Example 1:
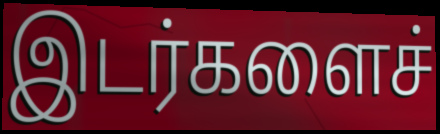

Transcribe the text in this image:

இடர்களைச்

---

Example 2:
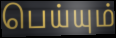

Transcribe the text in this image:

பெய்யும்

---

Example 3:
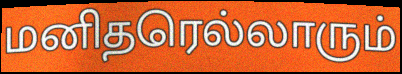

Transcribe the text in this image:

மனிதரெல்லாரும்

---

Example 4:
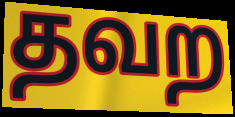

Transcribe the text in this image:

தவற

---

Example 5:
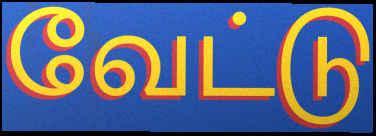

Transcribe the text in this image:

வேட்டு